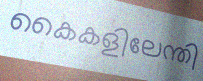
കൈകളിലേന്തി